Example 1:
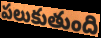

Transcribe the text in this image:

పలుకుతుంది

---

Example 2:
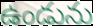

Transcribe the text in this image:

ఉండును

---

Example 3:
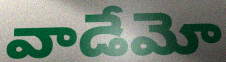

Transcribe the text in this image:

వాడేమో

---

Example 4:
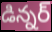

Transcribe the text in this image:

డిన్నర్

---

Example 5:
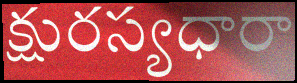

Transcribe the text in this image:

క్షురస్యధారా